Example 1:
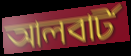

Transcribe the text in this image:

আলবার্ট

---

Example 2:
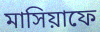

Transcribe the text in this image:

মাসিয়াফে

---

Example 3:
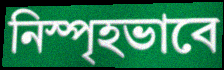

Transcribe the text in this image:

নিস্পৃহভাবে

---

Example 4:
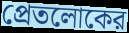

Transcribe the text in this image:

প্রেতলোকের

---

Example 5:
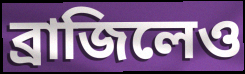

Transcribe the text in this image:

ব্রাজিলেও